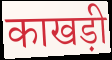
काखड़ी